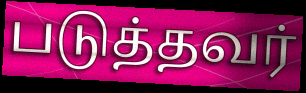
படுத்தவர்